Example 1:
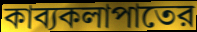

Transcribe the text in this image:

কাব্যকলাপাতের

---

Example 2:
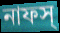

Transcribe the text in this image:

নাফস্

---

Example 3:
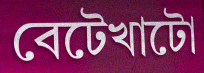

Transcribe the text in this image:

বেটেখাটো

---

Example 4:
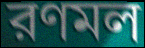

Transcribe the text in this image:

রণমল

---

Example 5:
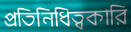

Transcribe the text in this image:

প্রতিনিধিত্বকারি